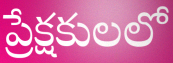
ప్రేక్షకులలో